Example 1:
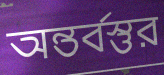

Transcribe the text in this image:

অন্তর্বস্তুর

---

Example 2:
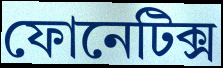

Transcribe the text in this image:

ফোনেটিক্স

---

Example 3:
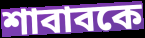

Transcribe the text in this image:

শাবাবকে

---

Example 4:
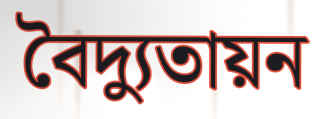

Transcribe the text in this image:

বৈদ্যুতায়ন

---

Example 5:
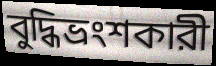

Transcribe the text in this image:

বুদ্ধিভ্রংশকারী